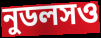
নুডলসও